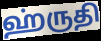
ஹ்ருதி